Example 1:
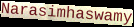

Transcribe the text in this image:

Narasimhaswamy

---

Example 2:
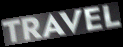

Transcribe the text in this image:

TRAVEL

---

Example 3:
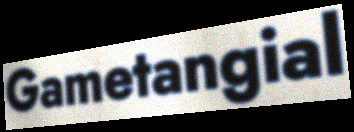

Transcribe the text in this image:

Gametangial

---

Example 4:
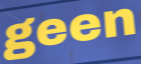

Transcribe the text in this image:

geen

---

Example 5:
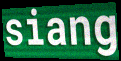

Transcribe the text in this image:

siang